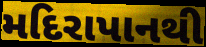
મદિરાપાનથી